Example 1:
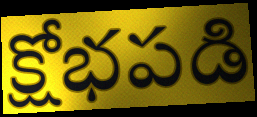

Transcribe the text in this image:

క్షోభపడి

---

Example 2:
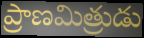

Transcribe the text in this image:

ప్రాణమిత్రుడు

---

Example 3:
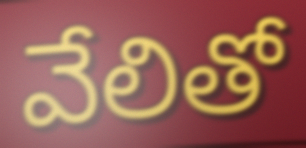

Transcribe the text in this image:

వేలితో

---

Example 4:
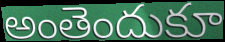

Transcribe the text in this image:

అంతెందుకూ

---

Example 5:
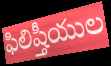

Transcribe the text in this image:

ఫిలిష్తీయుల